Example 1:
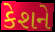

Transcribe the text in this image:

કેશને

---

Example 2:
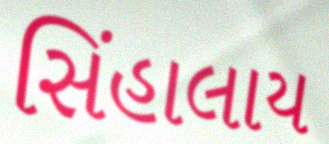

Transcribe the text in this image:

સિંહાલાય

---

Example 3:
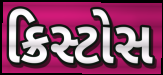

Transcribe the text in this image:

ક્રિસ્ટોસ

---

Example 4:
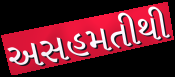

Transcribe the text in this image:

અસહમતીથી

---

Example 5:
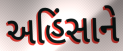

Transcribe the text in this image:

અહિંસાને